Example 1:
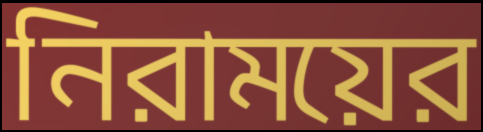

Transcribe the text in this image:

নিরাময়ের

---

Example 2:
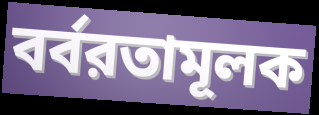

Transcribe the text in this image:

বর্বরতামূলক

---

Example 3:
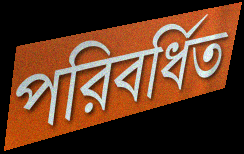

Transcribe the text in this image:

পরিবর্ধিত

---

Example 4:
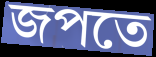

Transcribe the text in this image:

জপতে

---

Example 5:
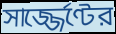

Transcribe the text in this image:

সার্জ্জেণ্টের